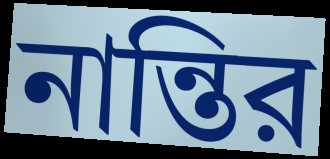
নান্তির